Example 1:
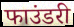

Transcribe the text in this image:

फाउंडरी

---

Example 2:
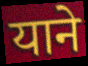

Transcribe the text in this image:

याने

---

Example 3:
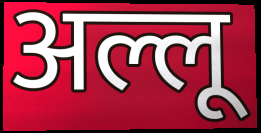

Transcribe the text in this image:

अल्लू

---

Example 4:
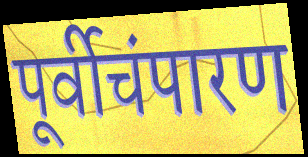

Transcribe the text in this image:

पूर्वीचंपारण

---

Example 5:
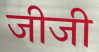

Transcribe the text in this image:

जीजी